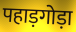
पहाड़गोड़ा